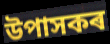
উপাসকৰ